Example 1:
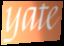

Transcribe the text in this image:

yate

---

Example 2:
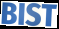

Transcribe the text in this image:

BIST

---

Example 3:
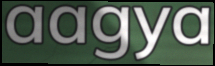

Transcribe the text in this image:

aagya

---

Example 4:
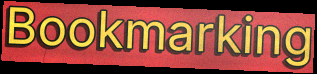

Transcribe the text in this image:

Bookmarking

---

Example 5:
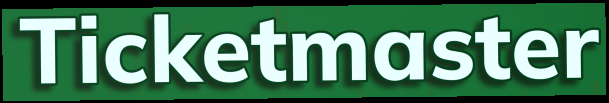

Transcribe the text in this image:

Ticketmaster